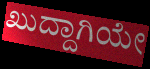
ಖುದ್ದಾಗಿಯೇ